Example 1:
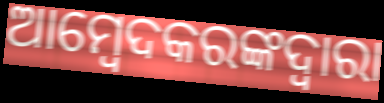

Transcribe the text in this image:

ଆମ୍ବେଦକରଙ୍କଦ୍ୱାରା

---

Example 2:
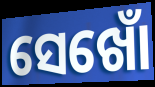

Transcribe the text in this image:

ସେଖୋଁ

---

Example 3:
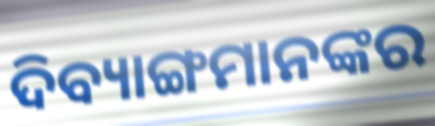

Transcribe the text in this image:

ଦିବ୍ୟାଙ୍ଗମାନଙ୍କର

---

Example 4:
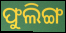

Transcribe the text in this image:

ଫୁଲିଙ୍ଗ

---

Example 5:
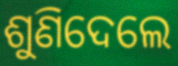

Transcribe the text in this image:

ଶୁଣିଦେଲେ